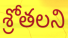
శ్రోతలని